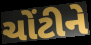
ચોંટીને